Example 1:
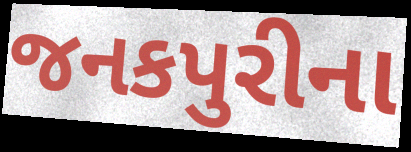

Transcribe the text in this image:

જનકપુરીના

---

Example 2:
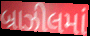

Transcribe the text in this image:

બ્રાઝીલમાં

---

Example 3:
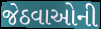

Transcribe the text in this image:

જેઠવાઓની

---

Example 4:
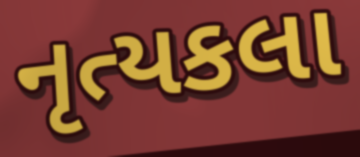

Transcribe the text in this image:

નૃત્યકલા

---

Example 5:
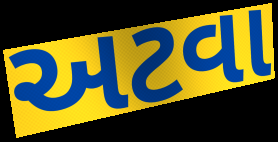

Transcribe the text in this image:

અટવા